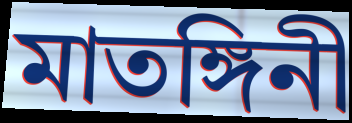
মাতঙ্গিনী